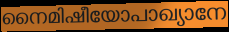
നൈമിഷീയോപാഖ്യാനേ